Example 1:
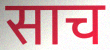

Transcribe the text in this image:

साच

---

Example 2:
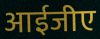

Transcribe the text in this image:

आईजीए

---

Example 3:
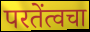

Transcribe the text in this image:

परतेंत्वचा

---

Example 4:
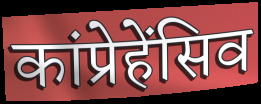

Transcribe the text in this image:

कांप्रेहेंसिव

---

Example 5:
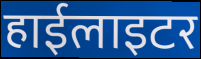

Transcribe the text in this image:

हाईलाइटर